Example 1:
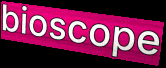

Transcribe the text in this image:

bioscope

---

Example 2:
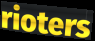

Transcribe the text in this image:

rioters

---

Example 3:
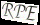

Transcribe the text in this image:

RPE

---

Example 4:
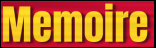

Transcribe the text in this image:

Memoire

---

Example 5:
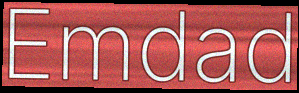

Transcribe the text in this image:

Emdad